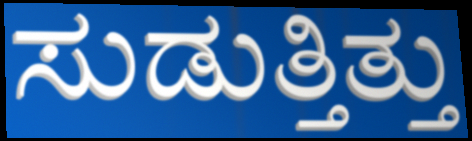
ಸುಡುತ್ತಿತ್ತು